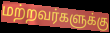
மற்றவர்களுக்கு